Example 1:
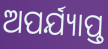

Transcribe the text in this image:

ଅପର୍ଯ୍ୟାପ୍ତ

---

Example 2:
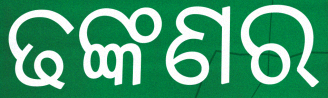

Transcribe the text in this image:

ଢଙ୍କଣର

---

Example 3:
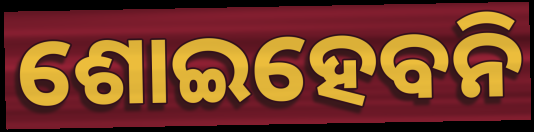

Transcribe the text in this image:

ଶୋଇହେବନି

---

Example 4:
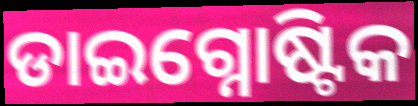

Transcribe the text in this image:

ଡାଇଗ୍ନୋଷ୍ଟିକ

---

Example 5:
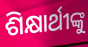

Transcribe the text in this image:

ଶିକ୍ଷାର୍ଥୀଙ୍କୁ